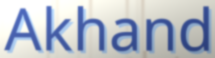
Akhand